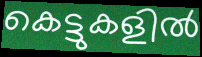
കെട്ടുകളിൽ